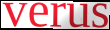
verus